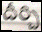
దీర్చి